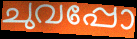
ചുവപ്പോ